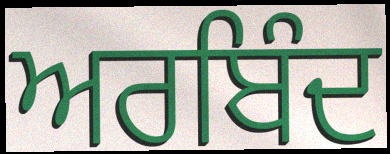
ਅਰਬਿੰਦ